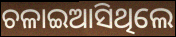
ଚଳାଇଆସିଥିଲେ